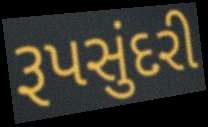
રૂપસુંદરી